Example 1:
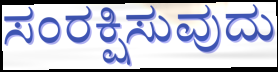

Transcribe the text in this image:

ಸಂರಕ್ಷಿಸುವುದು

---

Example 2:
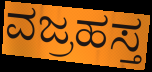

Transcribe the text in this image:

ವಜ್ರಹಸ್ತ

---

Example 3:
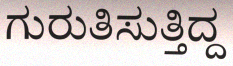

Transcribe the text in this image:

ಗುರುತಿಸುತ್ತಿದ್ದ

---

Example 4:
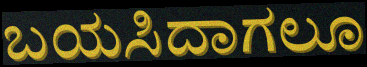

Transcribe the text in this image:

ಬಯಸಿದಾಗಲೂ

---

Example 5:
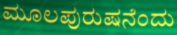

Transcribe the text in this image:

ಮೂಲಪುರುಷನೆಂದು